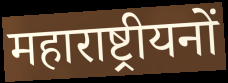
महाराष्ट्रीयनों